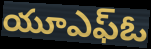
యూఎఫ్ఓ